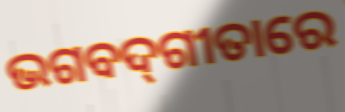
ଭଗବଦ୍‌ଗୀତାରେ